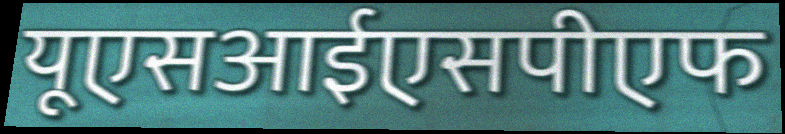
यूएसआईएसपीएफ